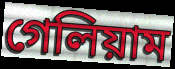
গেলিয়াম